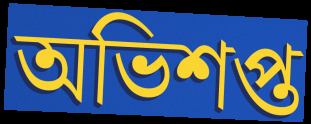
অভিশপ্ত